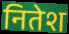
नितेश